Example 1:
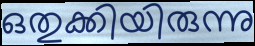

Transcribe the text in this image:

ഒതുക്കിയിരുന്നു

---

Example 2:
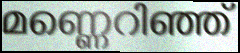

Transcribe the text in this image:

മണ്ണെറിഞ്ഞ്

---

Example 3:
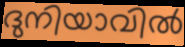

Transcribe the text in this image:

ദുനിയാവിൽ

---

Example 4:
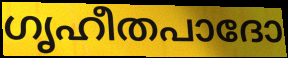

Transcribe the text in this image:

ഗൃഹീതപാദോ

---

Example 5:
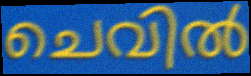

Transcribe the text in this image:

ചെവിൽ